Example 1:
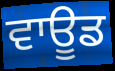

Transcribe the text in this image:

ਵਾਊਡ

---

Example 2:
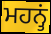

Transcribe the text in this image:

ਮਹਨ੍ਤਂ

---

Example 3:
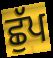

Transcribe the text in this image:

ਛੁੱਪ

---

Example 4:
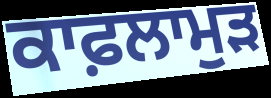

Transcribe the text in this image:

ਕਾਫ਼ਲਾਮੁੜ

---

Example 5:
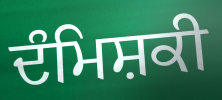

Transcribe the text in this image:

ਦੰਮਿਸ਼ਕੀ